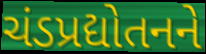
ચંડપ્રદ્યોતનને